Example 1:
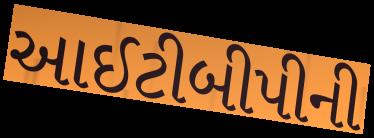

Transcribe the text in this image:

આઈટીબીપીની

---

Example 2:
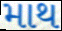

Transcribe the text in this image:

માથ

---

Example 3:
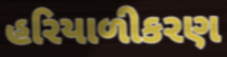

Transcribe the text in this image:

હરિયાળીકરણ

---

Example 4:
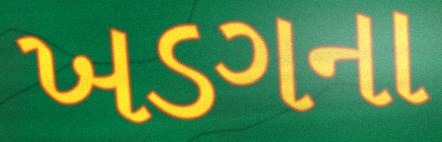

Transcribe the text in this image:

ખડગના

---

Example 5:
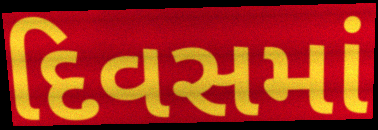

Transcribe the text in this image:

દિવસમાં